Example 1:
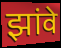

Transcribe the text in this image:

झांवे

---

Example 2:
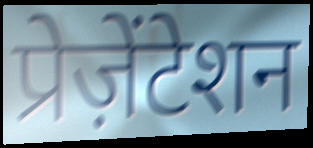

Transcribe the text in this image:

प्रेज़ेंटेशन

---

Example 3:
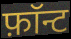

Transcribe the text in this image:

फ़ॉन्ट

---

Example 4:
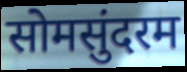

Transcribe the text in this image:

सोमसुंदरम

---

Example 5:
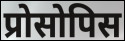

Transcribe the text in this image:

प्रोसोपिस